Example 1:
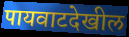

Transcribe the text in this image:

पायवाटदेखील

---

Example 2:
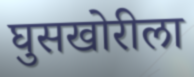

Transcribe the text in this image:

घुसखोरीला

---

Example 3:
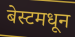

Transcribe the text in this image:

बेस्टमधून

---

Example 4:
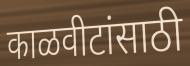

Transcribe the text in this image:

काळवीटांसाठी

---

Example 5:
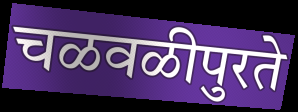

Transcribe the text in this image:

चळवळीपुरते